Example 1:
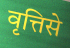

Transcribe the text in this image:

वृत्तिसे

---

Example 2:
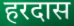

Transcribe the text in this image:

हरदास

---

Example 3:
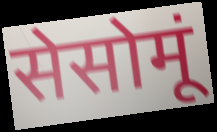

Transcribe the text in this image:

सेसोमूं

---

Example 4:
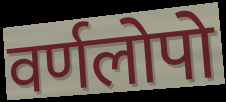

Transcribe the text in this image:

वर्णलोपो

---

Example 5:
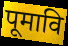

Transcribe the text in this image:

पूमावि